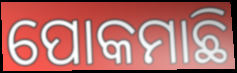
ପୋକମାଛି